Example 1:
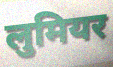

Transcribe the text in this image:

लुमियर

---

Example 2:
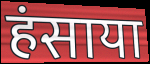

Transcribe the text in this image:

हंसाया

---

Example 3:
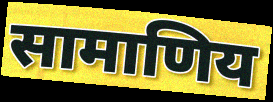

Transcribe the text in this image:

सामाणिय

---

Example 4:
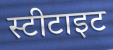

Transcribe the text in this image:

स्टीटाइट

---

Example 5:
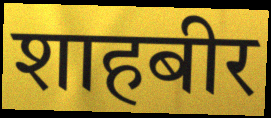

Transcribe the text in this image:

शाहबीर